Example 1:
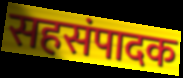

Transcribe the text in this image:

सहसंपादक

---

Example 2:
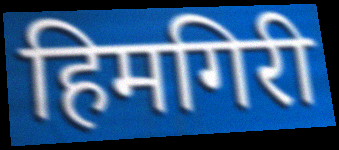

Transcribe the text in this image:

हिमगिरी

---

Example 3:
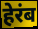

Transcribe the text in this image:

हेरंब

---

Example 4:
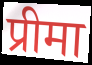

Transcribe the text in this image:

प्रीमा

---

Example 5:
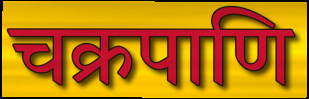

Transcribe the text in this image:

चक्रपाणि